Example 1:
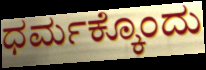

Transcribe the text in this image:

ಧರ್ಮಕ್ಕೊಂದು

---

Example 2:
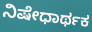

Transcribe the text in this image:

ನಿಷೇಧಾರ್ಥಕ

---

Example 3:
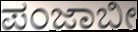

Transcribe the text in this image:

ಪಂಜಾಬೀ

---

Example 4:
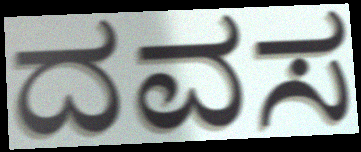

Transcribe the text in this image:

ದವಸ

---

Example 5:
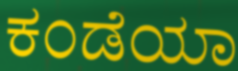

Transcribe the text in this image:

ಕಂಡೆಯಾ